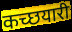
कच्छयारी